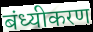
बंध्यीकरण